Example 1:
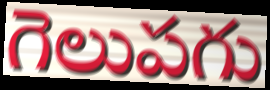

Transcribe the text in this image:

గెలుపగు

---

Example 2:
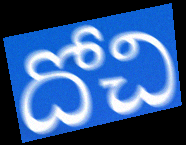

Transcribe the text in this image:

దోచి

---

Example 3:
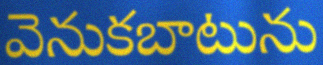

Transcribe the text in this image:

వెనుకబాటును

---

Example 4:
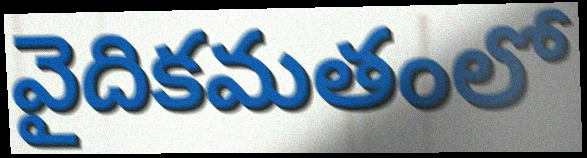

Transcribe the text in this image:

వైదికమతంలో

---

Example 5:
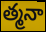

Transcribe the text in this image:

త్మనా